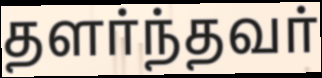
தளர்ந்தவர்